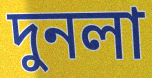
দুনলা